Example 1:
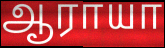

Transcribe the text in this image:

ஆராயா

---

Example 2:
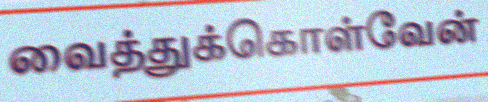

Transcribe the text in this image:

வைத்துக்கொள்வேன்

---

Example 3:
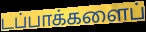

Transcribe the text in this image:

டப்பாக்களைப்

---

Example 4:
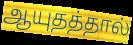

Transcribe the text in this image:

ஆயுதத்தால்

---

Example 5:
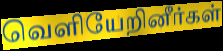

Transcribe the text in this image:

வெளியேறினீர்கள்